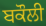
ਬਕੌਲੀ